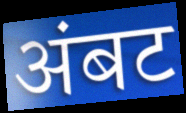
अंबट